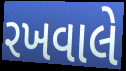
રખવાલે